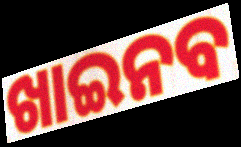
ଖାଇନବ